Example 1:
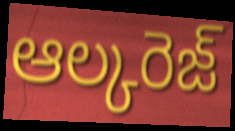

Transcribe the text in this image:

ఆల్కరెజ్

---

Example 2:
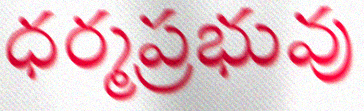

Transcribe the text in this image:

ధర్మప్రభువు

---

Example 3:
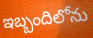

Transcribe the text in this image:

ఇబ్బందిలోను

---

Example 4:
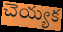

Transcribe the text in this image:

చెయ్యక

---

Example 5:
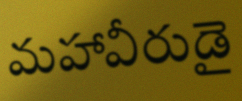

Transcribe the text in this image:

మహావీరుడై